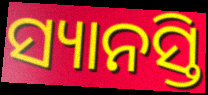
ସ୍ୟାନସ୍ତି